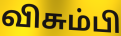
விசும்பி